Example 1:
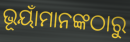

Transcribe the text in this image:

ଭୂୟାଁମାନଙ୍କଠାରୁ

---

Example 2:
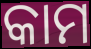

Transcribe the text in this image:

କାମ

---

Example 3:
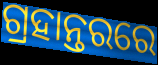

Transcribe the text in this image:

ଗ୍ରହାନ୍ତରରେ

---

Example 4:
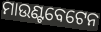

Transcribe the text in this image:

ମାଉଣ୍ଟବେଟେନ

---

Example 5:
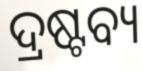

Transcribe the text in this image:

ଦ୍ରଷ୍ଟବ୍ୟ